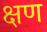
क्षण